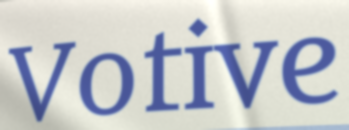
Votive